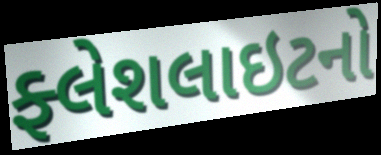
ફ્લેશલાઇટનો